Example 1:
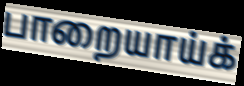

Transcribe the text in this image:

பாறையாய்க்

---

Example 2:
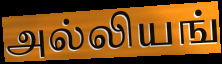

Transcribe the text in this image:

அல்லியங்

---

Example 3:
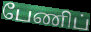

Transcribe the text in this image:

பேணிப்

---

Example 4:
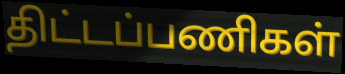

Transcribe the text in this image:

திட்டப்பணிகள்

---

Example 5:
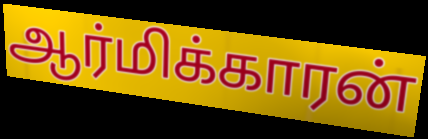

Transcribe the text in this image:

ஆர்மிக்காரன்